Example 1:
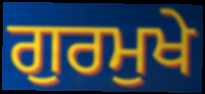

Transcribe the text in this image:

ਗੁਰਮੁਖੇ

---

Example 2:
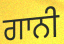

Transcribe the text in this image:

ਗਾਨੀ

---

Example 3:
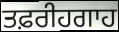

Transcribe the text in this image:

ਤਫ਼ਰੀਹਗਾਹ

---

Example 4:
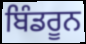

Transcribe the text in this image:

ਬਿੰਡਰੂਨ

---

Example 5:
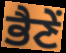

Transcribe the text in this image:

ਭੈਣੇਂ